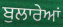
ਬੁਲਾਰੇਆਂ